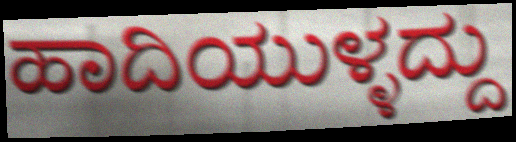
ಹಾದಿಯುಳ್ಳದ್ದು